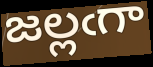
జల్లఁగా